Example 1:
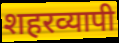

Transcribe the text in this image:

शहरव्यापी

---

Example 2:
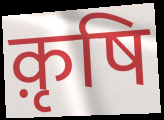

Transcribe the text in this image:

क़ृषि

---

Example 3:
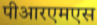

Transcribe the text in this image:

पीआरएमएस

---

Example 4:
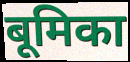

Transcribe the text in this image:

बूमिका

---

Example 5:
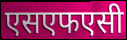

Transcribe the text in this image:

एसएफएसी